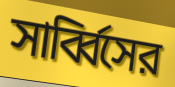
সার্ব্বিসের